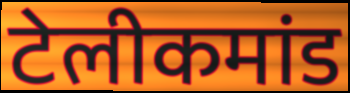
टेलीकमांड